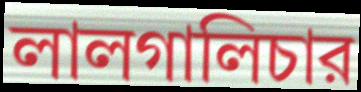
লালগালিচার